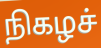
நிகழச்